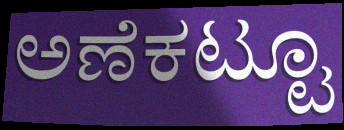
ಅಣೆಕಟ್ಟೂ